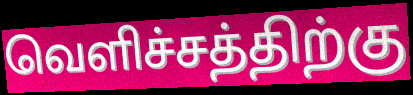
வெளிச்சத்திற்கு